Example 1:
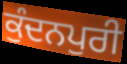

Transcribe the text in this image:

ਕੁੰਦਨਪੁਰੀ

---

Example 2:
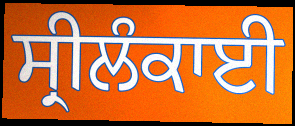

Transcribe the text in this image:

ਸ੍ਰੀਲੰਕਾਈ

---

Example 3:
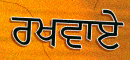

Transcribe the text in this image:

ਰਖਵਾਏ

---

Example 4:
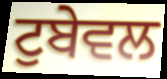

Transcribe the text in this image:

ਟੁਬੇਵਲ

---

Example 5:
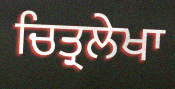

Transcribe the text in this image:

ਚਿਤ੍ਰਲੇਖਾ